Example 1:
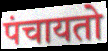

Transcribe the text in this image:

पंचायतो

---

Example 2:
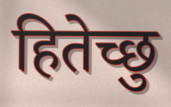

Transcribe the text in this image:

हितेच्छु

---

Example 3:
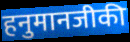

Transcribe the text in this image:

हनुमानजीकी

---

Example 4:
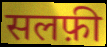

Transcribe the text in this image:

सलफ़ी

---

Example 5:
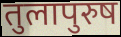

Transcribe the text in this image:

तुलापुरुष